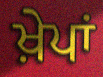
ਖ਼ੇਪਾਂ